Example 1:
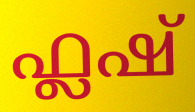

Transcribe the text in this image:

ഫ്ലഷ്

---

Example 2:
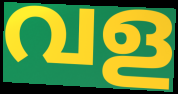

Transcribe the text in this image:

വള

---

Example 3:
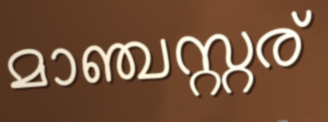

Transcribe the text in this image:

മാഞ്ചസ്റ്റര്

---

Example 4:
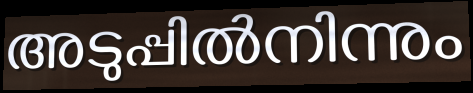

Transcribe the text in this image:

അടുപ്പിൽനിന്നും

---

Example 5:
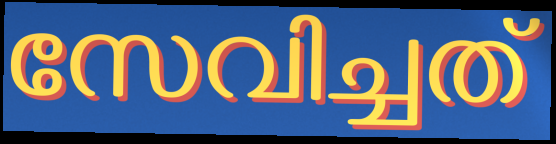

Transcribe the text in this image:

സേവിച്ചത്